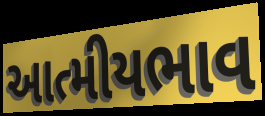
આત્મીયભાવ